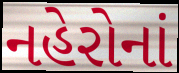
નહેરોનાં